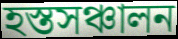
হস্তসঞ্চালন